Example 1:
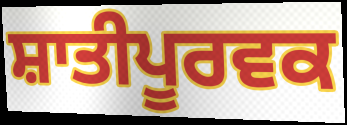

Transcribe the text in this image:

ਸ਼ਾਤੀਪੂਰਵਕ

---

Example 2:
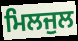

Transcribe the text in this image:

ਮਿਲਜੁਲ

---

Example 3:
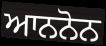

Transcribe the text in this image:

ਆਨਨੋਨ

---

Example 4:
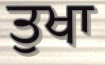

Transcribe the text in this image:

ਤੁਖਾ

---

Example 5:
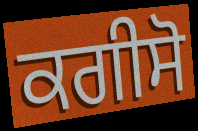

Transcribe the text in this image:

ਕਗੀਸੋ